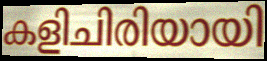
കളിചിരിയായി